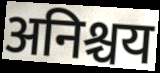
अनिश्चय